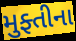
મુફ્તીના